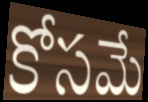
కోసమే